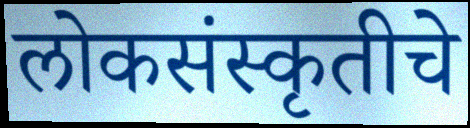
लोकसंस्कृतीचे